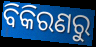
ବିକିରଣରୁ